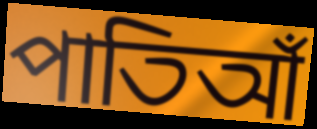
পাতিআঁ